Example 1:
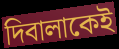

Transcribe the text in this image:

দিবালাকেই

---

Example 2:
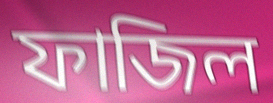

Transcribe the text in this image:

ফাজিল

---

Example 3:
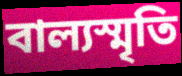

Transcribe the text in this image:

বাল্যস্মৃতি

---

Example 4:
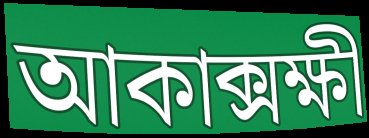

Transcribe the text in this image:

আকাক্সক্ষী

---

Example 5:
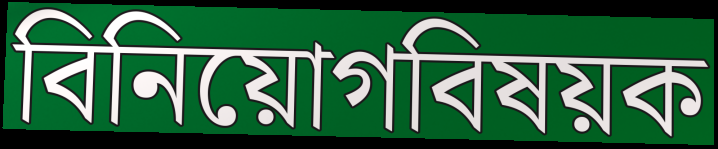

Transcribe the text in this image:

বিনিয়োগবিষয়ক